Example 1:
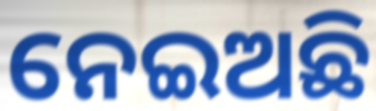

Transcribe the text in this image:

ନେଇଅଛି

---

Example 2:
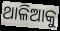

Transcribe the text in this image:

ଥାଳିଆକୁ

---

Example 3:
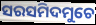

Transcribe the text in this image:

ସରସମିଦମୁଚେ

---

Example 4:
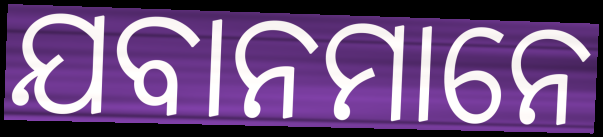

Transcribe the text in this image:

ଯବାନମାନେ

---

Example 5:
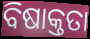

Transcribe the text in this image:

ବିଷାକ୍ତତା